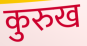
कुरुख